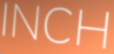
INCH